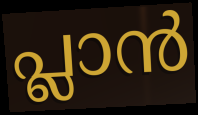
പ്ലാൻ